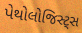
પેથોલોજિસ્ટ્સ